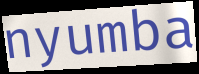
nyumba